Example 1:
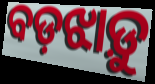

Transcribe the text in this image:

ବଡ଼ଝାଡ଼ୁ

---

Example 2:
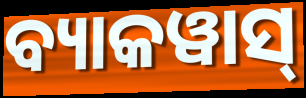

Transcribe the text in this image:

ବ୍ୟାକୱାସ୍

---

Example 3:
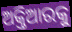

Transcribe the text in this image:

ଅକ୍ତିଆରକୁ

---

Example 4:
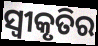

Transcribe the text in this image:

ସ୍ଵୀକୃତିର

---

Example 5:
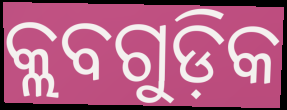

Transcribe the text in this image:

କ୍ଲବଗୁଡ଼ିକ